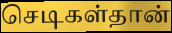
செடிகள்தான்